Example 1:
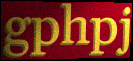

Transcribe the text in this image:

gphpj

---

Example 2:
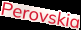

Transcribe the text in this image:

Perovskia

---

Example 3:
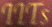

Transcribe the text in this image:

IITs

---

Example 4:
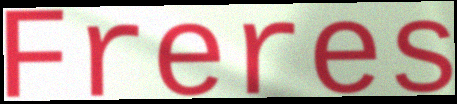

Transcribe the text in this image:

Freres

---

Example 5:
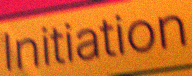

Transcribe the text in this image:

Initiation